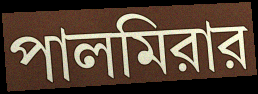
পালমিরার